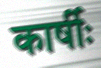
कार्षीः